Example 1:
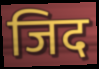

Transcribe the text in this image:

जिद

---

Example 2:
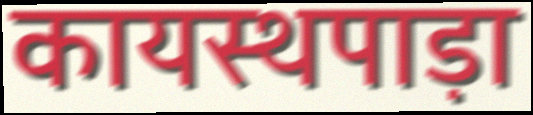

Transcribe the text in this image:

कायस्थपाड़ा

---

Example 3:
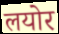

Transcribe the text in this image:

लयोर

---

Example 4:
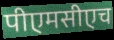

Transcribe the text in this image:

पीएमसीएच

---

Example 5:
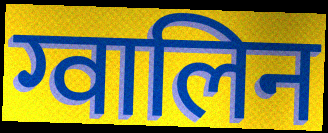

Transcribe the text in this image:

ग्वालिन